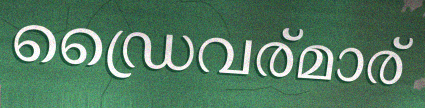
ഡ്രൈവര്മാര്